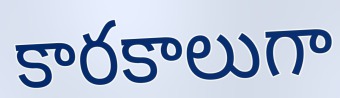
కారకాలుగా